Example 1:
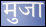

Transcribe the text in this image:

मुजा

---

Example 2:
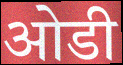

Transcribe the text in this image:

ओडी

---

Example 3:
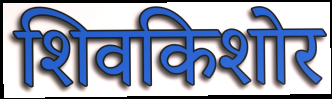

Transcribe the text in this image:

शिवकिशोर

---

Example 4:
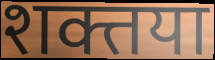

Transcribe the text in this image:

शक्तया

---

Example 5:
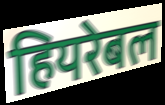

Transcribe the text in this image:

हियरेबल